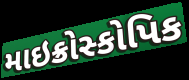
માઇક્રોસ્કોપિક